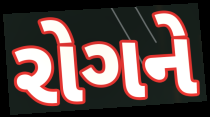
રોગને